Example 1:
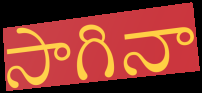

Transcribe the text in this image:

సాగినా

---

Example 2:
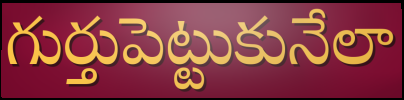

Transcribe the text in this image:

గుర్తుపెట్టుకునేలా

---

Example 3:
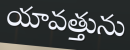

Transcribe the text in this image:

యావత్తును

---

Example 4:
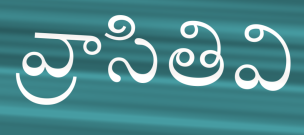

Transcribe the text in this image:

వ్రాసితివి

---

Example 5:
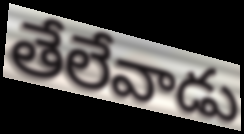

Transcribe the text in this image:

తేలేవాడు